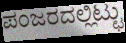
ಪಂಜರದಲ್ಲಿಟ್ಟು